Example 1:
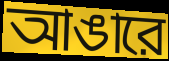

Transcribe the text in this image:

আঙারে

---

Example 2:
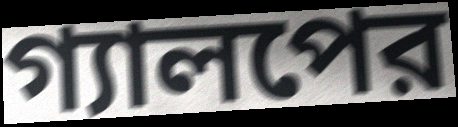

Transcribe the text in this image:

গ্যালপের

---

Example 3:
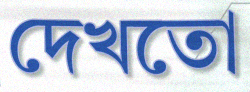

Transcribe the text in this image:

দেখতো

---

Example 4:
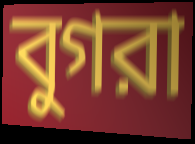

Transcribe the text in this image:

বুগরা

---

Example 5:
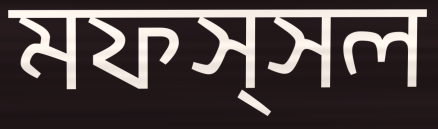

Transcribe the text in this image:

মফস্‌সল